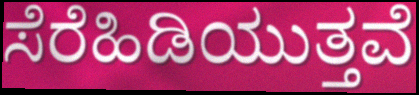
ಸೆರೆಹಿಡಿಯುತ್ತವೆ